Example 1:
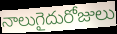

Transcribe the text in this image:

నాలుగైదురోజులు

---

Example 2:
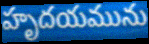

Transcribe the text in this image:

హృదయమును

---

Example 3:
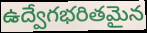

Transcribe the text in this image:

ఉద్వేగభరితమైన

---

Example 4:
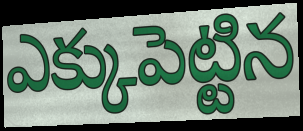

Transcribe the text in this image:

ఎక్కుపెట్టిన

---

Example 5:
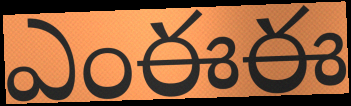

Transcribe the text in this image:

ఎంఈఈ